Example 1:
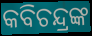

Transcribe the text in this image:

କବିଚନ୍ଦ୍ରଙ୍କ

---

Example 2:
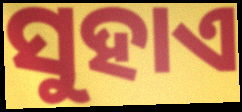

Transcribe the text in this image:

ସୁହାଏ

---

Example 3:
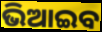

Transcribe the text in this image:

ଭିଆଇବ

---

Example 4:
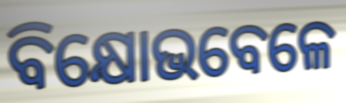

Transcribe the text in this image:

ବିକ୍ଷୋଭବେଳେ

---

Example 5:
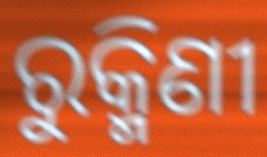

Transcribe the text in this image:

ରୁକ୍ମିଣୀ